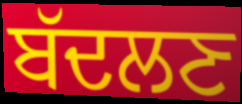
ਬੱਦਲਣ